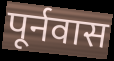
पूर्नवास